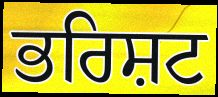
ਭਰਿਸ਼ਟ